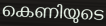
കെണിയുടെ